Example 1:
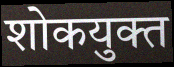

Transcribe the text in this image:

शोकयुक्त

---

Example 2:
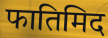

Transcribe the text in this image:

फातिमिद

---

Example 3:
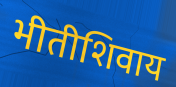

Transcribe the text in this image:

भीतीशिवाय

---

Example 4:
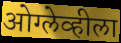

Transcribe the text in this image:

ओग्लेव्हीला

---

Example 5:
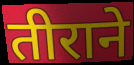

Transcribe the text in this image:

तीराने